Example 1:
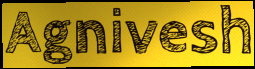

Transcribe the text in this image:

Agnivesh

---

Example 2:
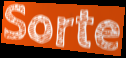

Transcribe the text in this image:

Sorte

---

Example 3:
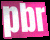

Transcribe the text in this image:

pbr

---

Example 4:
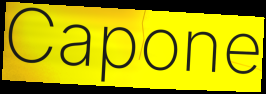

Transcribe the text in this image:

Capone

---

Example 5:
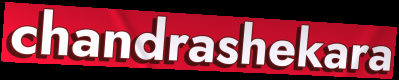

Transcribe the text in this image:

chandrashekara